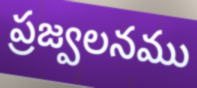
ప్రజ్వలనము